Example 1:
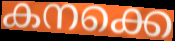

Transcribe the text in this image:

കനക്കെ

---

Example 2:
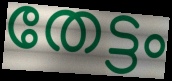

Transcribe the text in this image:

തേട്ടം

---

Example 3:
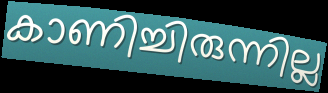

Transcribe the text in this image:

കാണിച്ചിരുന്നില്ല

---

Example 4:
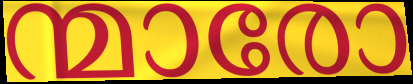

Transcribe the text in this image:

ന്മാരോ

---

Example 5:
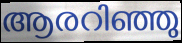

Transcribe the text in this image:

ആരറിഞ്ഞു